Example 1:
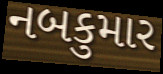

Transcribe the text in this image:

નબકુમાર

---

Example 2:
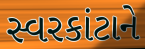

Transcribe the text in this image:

સ્વરકાંટાને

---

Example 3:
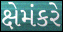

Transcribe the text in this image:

ક્ષેમંકરે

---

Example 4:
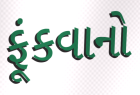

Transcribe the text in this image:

ફૂંકવાનો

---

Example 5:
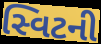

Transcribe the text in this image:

સ્વિટની